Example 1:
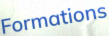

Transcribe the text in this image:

Formations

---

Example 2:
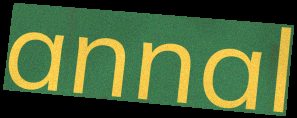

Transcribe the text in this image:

annal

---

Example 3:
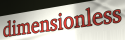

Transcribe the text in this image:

dimensionless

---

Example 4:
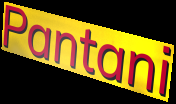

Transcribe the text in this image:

Pantani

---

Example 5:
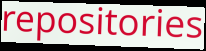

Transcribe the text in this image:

repositories